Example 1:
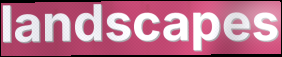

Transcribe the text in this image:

landscapes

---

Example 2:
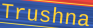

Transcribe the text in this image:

Trushna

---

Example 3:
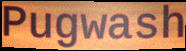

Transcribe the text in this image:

Pugwash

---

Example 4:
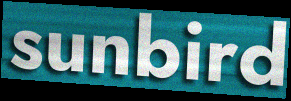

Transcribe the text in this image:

sunbird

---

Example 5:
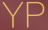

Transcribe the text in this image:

YP